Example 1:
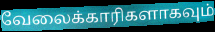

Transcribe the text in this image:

வேலைக்காரிகளாகவும்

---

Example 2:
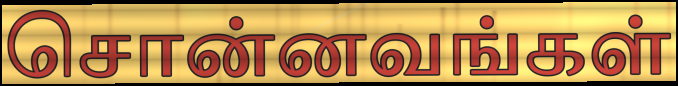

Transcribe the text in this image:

சொன்னவங்கள்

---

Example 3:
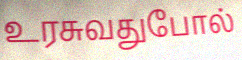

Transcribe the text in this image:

உரசுவதுபோல்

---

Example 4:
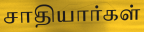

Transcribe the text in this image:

சாதியார்கள்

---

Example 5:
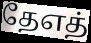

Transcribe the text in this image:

தேஎத்